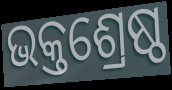
ଭକ୍ତଶ୍ରେଷ୍ଠ